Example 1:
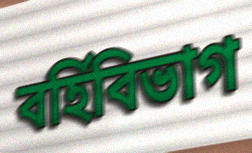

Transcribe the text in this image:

বর্হিবিভাগ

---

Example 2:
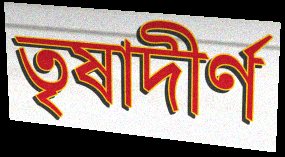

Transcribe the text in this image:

তৃষাদীর্ণ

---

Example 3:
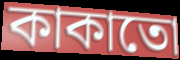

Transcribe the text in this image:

কাকাতো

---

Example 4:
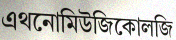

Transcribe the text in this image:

এথনোমিউজিকোলজি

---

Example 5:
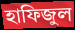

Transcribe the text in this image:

হাফিজুল